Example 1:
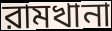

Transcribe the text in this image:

রামখানা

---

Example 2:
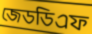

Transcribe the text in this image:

জেডডিএফ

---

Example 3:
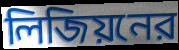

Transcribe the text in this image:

লিজিয়নের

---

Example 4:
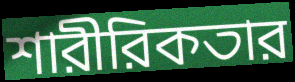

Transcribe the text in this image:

শারীরিকতার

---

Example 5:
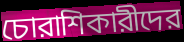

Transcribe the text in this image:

চোরাশিকারীদের